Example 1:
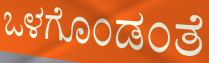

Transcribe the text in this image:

ಒಳಗೊಂಡಂತೆ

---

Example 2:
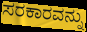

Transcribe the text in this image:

ಸರಕಾರವನ್ನು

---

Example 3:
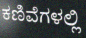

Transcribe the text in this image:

ಕಣಿವೆಗಳಲ್ಲಿ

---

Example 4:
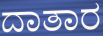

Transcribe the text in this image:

ದಾತಾರ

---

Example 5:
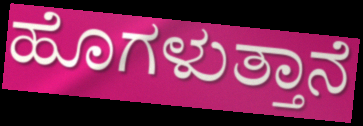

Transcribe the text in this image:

ಹೊಗಳುತ್ತಾನೆ